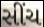
સીંચ